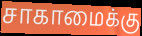
சாகாமைக்கு